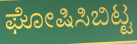
ಘೋಷಿಸಿಬಿಟ್ಟ